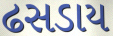
ઢસડાય